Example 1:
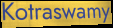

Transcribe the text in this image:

Kotraswamy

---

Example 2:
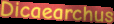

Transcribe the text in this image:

Dicaearchus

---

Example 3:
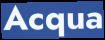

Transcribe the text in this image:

Acqua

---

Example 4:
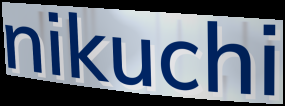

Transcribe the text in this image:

nikuchi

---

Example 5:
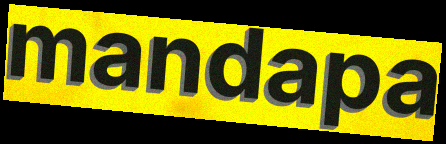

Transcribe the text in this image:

mandapa